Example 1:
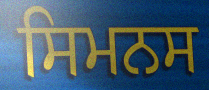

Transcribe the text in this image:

ਸਿਮਨਸ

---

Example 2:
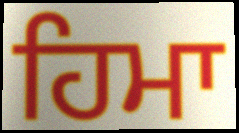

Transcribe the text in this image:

ਹਿਮਾ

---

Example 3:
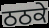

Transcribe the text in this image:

ਠਠਕੇ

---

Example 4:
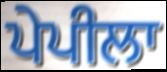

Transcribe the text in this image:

ਪੇਪੀਲਾ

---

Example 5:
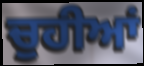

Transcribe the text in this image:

ਚੁਹੀਆਂ